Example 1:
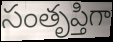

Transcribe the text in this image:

సంతృప్తిగా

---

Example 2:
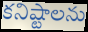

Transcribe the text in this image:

కనిష్టాలను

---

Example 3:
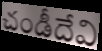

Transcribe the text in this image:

చండీదేవి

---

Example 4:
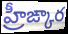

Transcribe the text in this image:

హ్రీఙ్కార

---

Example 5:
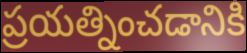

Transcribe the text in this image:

ప్రయత్నించడానికి